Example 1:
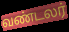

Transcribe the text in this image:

வண்டலர்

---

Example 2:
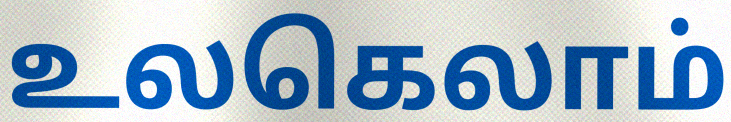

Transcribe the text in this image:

உலகெலாம்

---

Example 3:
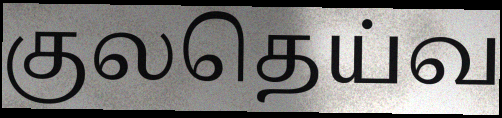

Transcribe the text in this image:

குலதெய்வ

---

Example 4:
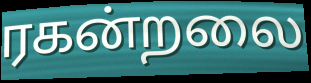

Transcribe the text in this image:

ரகன்றலை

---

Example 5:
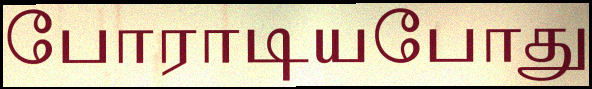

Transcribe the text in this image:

போராடியபோது